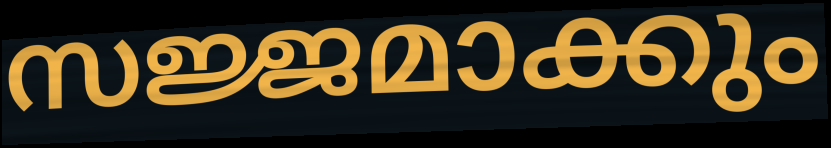
സജ്ജമാക്കും